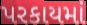
પરકાયમાં